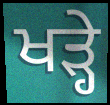
ਖਡ਼੍ਹੇ